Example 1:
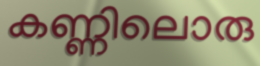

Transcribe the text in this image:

കണ്ണിലൊരു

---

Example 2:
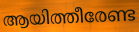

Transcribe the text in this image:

ആയിത്തീരേണ്ട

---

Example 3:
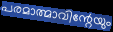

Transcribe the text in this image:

പരമാത്മാവിന്റേയും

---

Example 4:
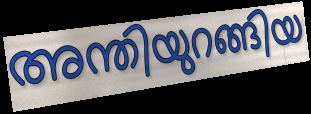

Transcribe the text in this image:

അന്തിയുറങ്ങിയ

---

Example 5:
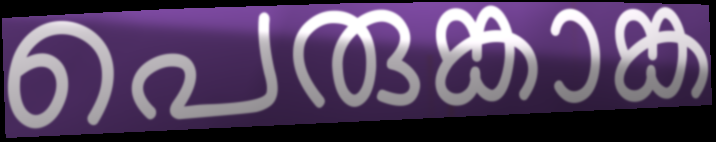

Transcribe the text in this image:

പെരുങ്കാങ്ക